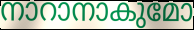
നാറാനാകുമോ